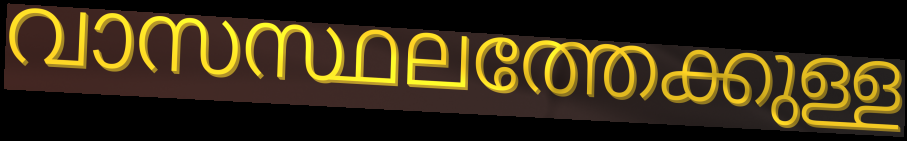
വാസസ്ഥലത്തേക്കുള്ള